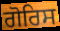
ਗੋਰਿਸ